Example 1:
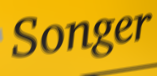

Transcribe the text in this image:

Songer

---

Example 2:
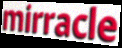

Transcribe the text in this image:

mirracle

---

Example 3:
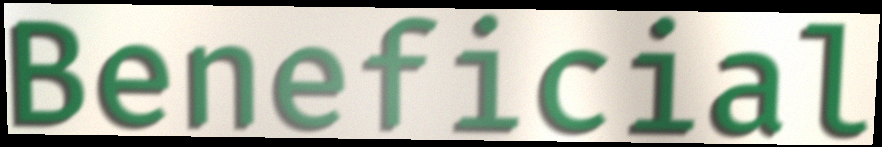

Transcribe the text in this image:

Beneficial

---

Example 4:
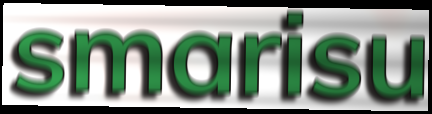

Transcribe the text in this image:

smarisu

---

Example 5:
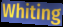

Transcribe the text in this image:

Whiting